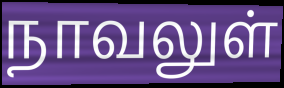
நாவலுள்